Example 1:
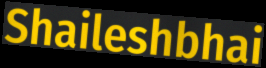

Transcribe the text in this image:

Shaileshbhai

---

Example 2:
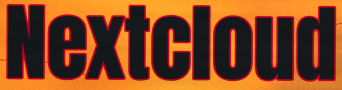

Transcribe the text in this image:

Nextcloud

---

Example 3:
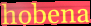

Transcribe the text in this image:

hobena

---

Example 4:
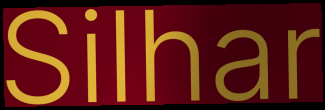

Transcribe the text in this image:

Silhar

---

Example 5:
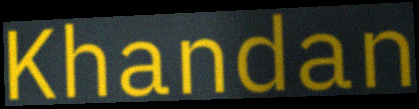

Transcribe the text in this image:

Khandan